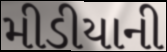
મીડીયાની